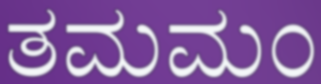
ತಮಮಂ